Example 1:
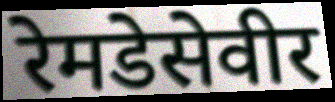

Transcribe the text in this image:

रेमडेसेवीर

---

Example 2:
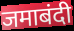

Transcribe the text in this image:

जमाबंदी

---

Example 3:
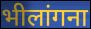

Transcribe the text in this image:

भीलांगना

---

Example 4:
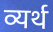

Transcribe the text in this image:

व्यर्थ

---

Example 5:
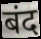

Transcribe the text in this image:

बंद